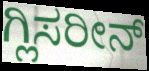
ಗ್ಲಿಸರೀನ್